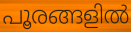
പൂരങ്ങളിൽ